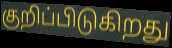
குறிப்பிடுகிறது